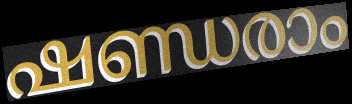
ഷണ്ഡരാം